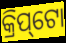
କ୍ରିପ୍‌ଟୋ